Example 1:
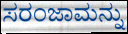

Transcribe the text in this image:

ಸರಂಜಾಮನ್ನು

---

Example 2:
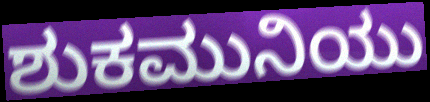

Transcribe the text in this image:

ಶುಕಮುನಿಯು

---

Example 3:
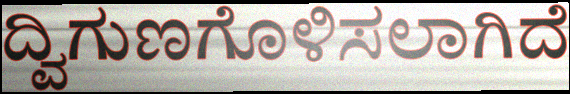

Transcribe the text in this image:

ದ್ವಿಗುಣಗೊಳಿಸಲಾಗಿದೆ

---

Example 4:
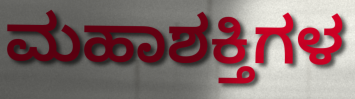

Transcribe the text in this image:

ಮಹಾಶಕ್ತಿಗಳ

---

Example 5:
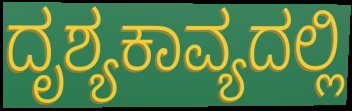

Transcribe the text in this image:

ದೃಶ್ಯಕಾವ್ಯದಲ್ಲಿ